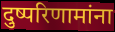
दुष्परिणामांना